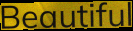
Beautiful